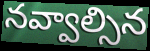
నవ్వాల్సిన